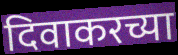
दिवाकरच्या